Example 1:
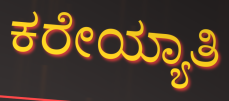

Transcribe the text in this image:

ಕರೇಯ್ಯಾತಿ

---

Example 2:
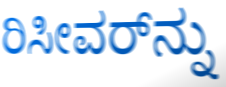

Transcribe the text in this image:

ರಿಸೀವರ್‌ನ್ನು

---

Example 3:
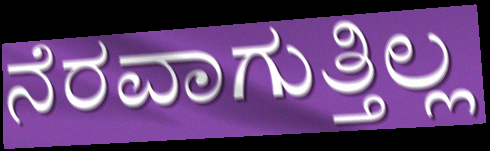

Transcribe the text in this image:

ನೆರವಾಗುತ್ತಿಲ್ಲ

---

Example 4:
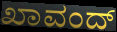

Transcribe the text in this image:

ಖಾವಂದ್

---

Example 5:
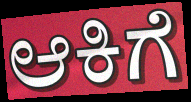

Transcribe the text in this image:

ಆಕಿಗೆ